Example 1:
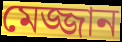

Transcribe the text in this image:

মেজ্জান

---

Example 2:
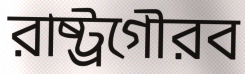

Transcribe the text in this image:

রাষ্ট্রগৌরব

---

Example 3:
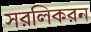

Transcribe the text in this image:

সরলিকরন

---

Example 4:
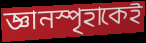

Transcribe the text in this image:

জ্ঞানস্পৃহাকেই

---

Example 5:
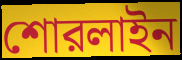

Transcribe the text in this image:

শোরলাইন